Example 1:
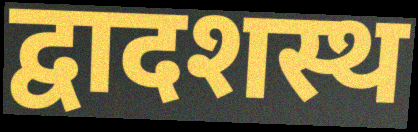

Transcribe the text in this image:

द्वादशस्थ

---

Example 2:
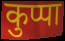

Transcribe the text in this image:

कुप्पा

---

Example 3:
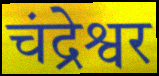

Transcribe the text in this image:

चंद्रेश्वर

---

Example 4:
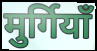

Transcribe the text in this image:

मुर्गियाँ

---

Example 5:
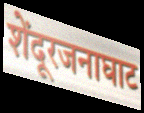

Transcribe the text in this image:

शेंदूरजनाघाट